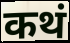
कथं